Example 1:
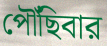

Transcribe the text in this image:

পৌঁছিবার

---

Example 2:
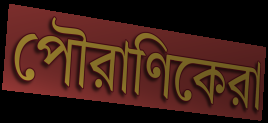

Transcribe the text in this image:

পৌরাণিকেরা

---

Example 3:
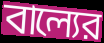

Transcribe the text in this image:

বাল্যের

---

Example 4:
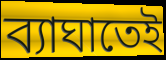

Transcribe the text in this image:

ব্যাঘাতেই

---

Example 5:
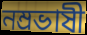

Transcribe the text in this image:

নম্রভাষী